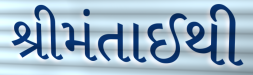
શ્રીમંતાઈથી